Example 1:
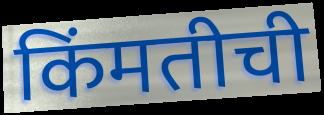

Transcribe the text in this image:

किंमतीची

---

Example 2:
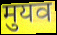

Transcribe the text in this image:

मुयव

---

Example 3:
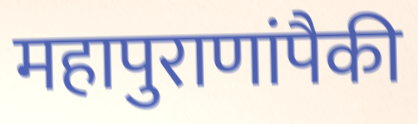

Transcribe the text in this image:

महापुराणांपैकी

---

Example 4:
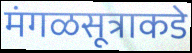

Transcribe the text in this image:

मंगळसूत्राकडे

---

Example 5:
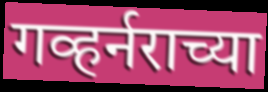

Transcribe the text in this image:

गव्हर्नराच्या